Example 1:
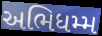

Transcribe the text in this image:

અભિધમ્મ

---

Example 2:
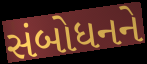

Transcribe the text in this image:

સંબોધનને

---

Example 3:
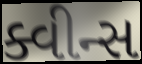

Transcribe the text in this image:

ક્વીન્સ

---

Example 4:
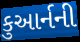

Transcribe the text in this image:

કુઆર્નની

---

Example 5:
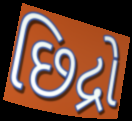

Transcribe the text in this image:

છિદ્રો